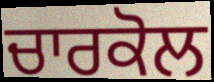
ਚਾਰਕੋਲ